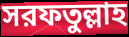
সরফতুল্লাহ